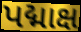
પદ્માક્ષ